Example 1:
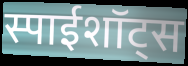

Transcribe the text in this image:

स्पाईशॉट्स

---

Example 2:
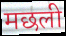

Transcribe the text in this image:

मछली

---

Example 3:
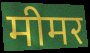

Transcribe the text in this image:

मीमर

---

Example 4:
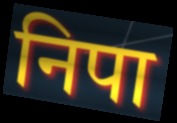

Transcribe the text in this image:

निपा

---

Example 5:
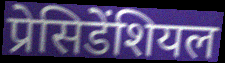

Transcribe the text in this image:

प्रेसिडेंशियल